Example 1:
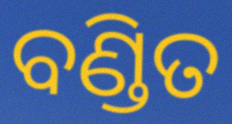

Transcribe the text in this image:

ବଣ୍ଡିତ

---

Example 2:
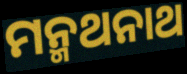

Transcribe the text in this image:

ମନ୍ମଥନାଥ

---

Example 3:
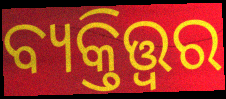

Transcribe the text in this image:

ବ୍ୟକ୍ତିତ୍ତ୍ଵର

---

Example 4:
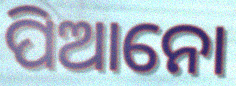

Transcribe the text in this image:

ପିଆନୋ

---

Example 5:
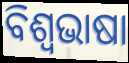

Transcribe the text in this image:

ବିଶ୍ୱଭାଷା